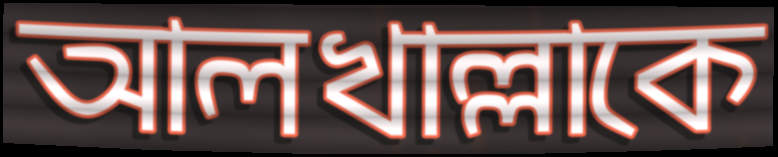
আলখাল্লাকে